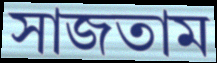
সাজতাম